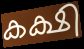
കക്ഷി